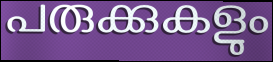
പരുക്കുകളും